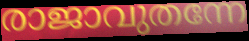
രാജാവുതന്നേ